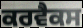
ਕਰਵੈਕਸ